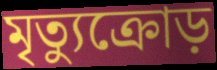
মৃত্যুক্রোড়